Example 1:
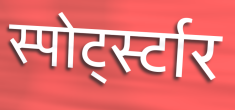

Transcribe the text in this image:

स्पोर्ट्स्टार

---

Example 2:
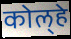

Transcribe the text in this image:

कोल्हे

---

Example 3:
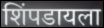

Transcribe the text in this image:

शिंपडायला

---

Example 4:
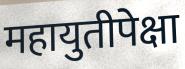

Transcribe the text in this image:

महायुतीपेक्षा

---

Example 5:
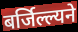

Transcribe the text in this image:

बर्जिल्ल्यने